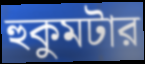
হুকুমটার